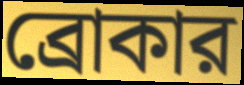
ব্রোকার